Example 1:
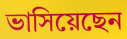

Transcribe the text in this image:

ভাসিয়েছেন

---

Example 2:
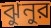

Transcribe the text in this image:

ঝুনুর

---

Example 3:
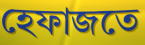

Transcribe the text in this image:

হেফাজতে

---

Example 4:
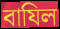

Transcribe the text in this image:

বাযিল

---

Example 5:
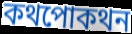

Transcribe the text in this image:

কথপোকথন